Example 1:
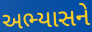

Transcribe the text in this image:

અભ્યાસને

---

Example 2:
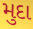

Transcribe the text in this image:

મુદા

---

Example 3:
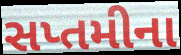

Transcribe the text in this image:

સપ્તમીના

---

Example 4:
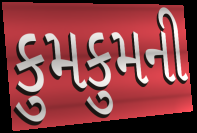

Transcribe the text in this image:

કુમકુમની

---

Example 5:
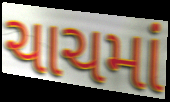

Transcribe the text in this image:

ચાચમાં